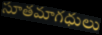
సూతమాగధులు